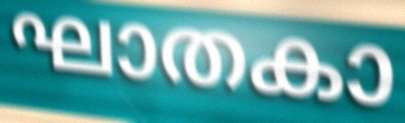
ഘാതകാ